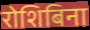
रोशिबिना